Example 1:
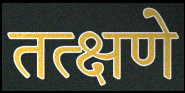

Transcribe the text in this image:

तत्क्षणे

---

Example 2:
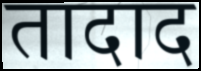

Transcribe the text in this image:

तादाद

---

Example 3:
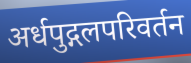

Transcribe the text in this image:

अर्धपुद्गलपरिवर्तन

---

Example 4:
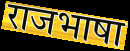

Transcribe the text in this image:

राजभाषा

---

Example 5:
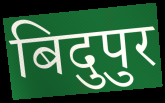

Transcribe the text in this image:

बिदुपुर